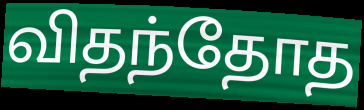
விதந்தோத